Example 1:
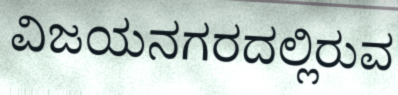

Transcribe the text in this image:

ವಿಜಯನಗರದಲ್ಲಿರುವ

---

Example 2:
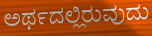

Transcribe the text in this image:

ಅರ್ಥದಲ್ಲಿರುವುದು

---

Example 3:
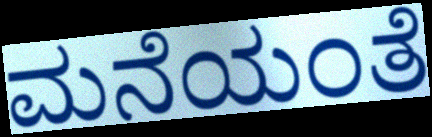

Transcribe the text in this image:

ಮನೆಯಂತೆ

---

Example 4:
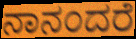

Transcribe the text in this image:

ನಾನಂದರೆ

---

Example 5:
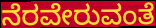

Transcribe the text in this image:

ನೆರವೇರುವಂತೆ